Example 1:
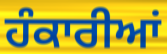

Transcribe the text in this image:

ਹੰਕਾਰੀਆਂ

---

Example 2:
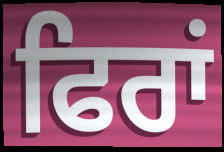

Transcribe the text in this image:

ਫਿਰਾਂ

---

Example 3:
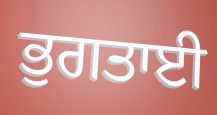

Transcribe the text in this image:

ਭੁਗਤਾਈ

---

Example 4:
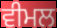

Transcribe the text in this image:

ਵੀਮਲ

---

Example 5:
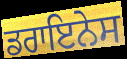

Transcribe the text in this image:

ਡਰਾਇਨੇਸ